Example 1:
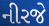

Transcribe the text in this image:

નીરજે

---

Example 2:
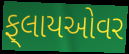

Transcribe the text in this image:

ફ્‌લાયઓવર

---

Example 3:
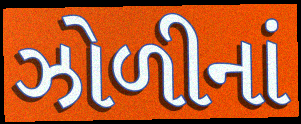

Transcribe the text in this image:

ઝોળીનાં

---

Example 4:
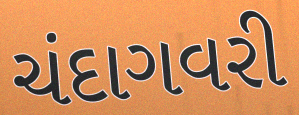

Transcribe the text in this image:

ચંદાગવરી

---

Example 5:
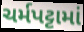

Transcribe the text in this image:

ચર્મપટ્ટામાં